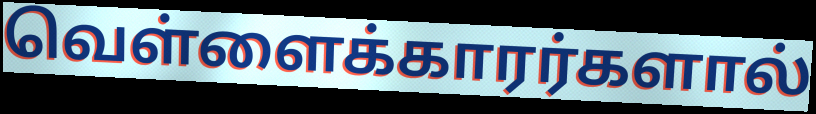
வெள்ளைக்காரர்களால்